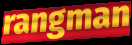
rangman